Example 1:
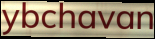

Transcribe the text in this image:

ybchavan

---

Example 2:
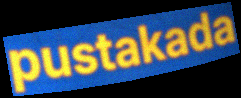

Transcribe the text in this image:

pustakada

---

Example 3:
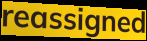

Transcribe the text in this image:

reassigned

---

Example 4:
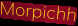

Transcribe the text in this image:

Morpichh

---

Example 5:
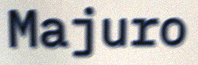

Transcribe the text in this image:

Majuro